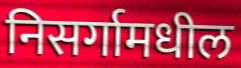
निसर्गामधील